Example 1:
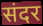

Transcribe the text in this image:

संदर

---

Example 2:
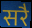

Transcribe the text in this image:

सरै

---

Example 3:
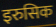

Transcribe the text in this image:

इरुसिक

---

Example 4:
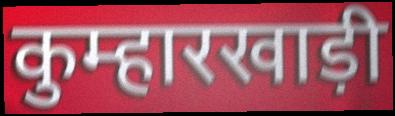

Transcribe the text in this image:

कुम्हारखाड़ी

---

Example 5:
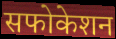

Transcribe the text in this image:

सफोकेशन